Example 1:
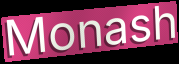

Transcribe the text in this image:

Monash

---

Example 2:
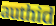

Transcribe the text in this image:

authid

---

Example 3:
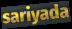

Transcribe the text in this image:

sariyada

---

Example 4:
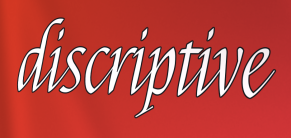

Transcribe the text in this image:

discriptive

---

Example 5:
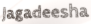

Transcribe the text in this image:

Jagadeesha